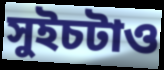
সুইচটাও